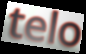
telo